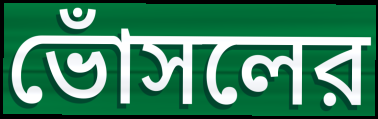
ভোঁসলের